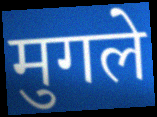
मुगले